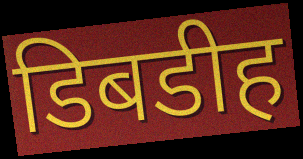
डिबडीह